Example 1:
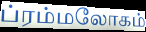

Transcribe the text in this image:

ப்ரம்மலோகம்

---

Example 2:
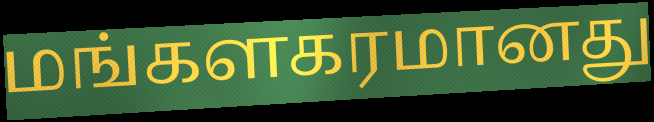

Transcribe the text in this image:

மங்களகரமானது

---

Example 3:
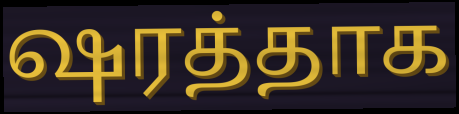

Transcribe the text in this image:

ஷரத்தாக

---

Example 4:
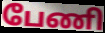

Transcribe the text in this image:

பேணி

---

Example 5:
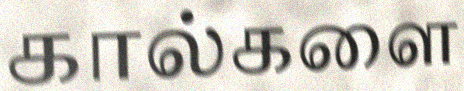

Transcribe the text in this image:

கால்களை